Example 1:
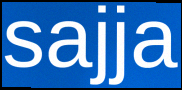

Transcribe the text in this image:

sajja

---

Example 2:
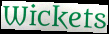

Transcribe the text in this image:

Wickets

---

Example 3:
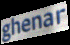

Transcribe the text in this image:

ghenar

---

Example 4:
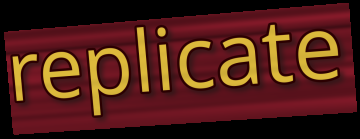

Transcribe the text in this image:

replicate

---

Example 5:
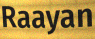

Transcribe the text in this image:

Raayan